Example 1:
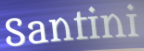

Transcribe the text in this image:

Santini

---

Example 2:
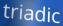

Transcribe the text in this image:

triadic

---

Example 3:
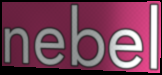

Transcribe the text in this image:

nebel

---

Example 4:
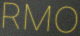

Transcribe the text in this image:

RMO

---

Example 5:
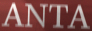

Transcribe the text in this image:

ANTA